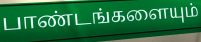
பாண்டங்களையும்